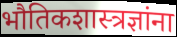
भौतिकशास्त्रज्ञांना